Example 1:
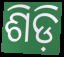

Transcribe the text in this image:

ଶିଡ଼ି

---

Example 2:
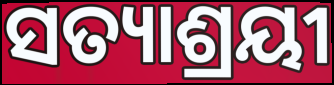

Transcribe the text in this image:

ସତ୍ୟାଶ୍ରୟୀ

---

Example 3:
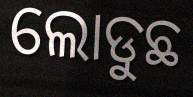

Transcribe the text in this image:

ଲୋଡୁଛ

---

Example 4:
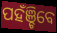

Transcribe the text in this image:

ପହଁଞ୍ଚିବେ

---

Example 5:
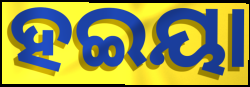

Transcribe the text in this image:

ହଇୟା